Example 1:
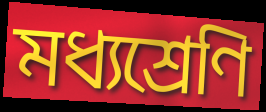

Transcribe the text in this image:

মধ্যশ্রেণি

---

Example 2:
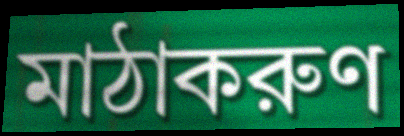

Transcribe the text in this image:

মাঠাকরুণ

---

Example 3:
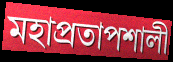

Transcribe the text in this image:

মহাপ্রতাপশালী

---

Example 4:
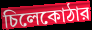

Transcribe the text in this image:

চিলেকোঠার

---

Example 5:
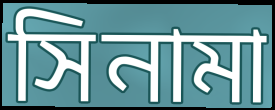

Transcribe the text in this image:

সিনামা